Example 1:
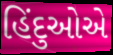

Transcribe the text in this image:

હિંદુઓએ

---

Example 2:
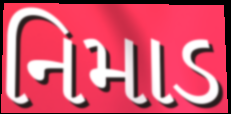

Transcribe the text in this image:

નિમાડ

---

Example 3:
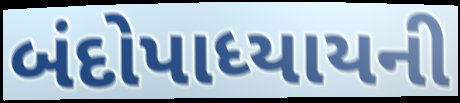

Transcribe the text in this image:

બંદોપાધ્યાયની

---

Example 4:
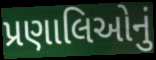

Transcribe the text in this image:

પ્રણાલિઓનું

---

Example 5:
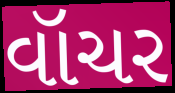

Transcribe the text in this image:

વૉચર